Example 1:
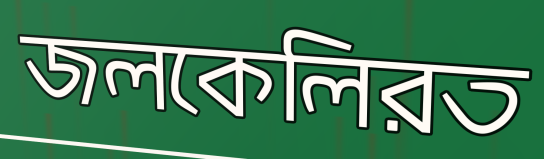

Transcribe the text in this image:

জলকেলিরত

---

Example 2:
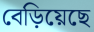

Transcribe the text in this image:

বেড়িয়েছে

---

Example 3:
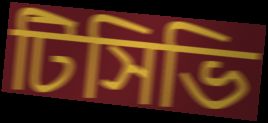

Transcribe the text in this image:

টিসিভি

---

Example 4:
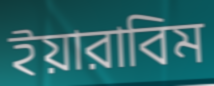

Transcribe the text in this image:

ইয়ারাবিম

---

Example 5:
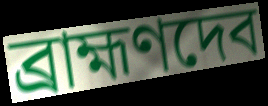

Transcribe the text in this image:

ব্রাহ্মণদেব